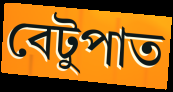
বেটুপাত